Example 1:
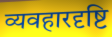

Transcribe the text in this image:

व्यवहारदृष्टि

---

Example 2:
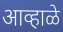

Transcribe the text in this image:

आव्हाळे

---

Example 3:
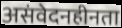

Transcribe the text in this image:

असंवेदनहीनता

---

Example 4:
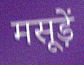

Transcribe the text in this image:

मसूड़ें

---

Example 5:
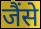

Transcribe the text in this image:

जैंसे